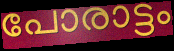
പോരാട്ടം